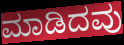
ಮಾಡಿದವು